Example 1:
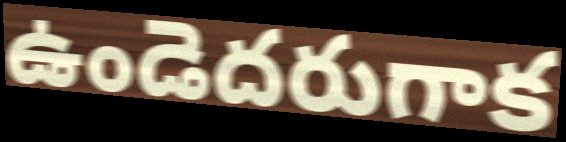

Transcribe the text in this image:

ఉండెదరుగాక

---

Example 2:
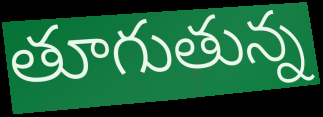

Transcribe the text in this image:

తూగుతున్న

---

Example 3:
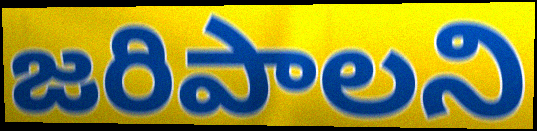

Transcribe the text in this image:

జరిపాలని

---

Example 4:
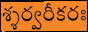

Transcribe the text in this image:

శ్శర్వరీకరః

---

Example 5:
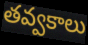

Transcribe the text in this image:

తవ్వకాలు